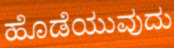
ಹೊಡೆಯುವುದು